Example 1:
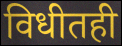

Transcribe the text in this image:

विधीतही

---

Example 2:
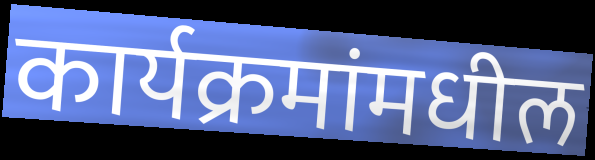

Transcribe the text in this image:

कार्यक्रमांमधील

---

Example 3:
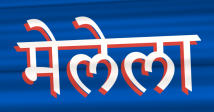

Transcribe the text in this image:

मेलेला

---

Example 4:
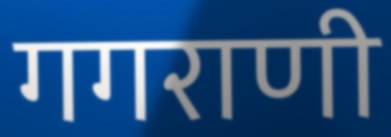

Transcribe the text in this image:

गगराणी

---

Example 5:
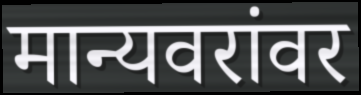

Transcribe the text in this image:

मान्यवरांवर